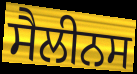
ਸੈਲੀਨਸ